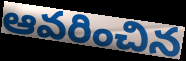
ఆవరించిన